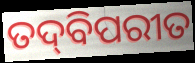
ତଦ୍‍ବିପରୀତ